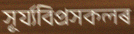
সূৰ্য্যবিপ্ৰসকলৰ